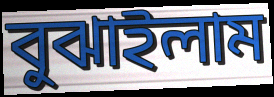
বুঝাইলাম